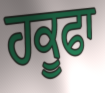
ਹਕੂਫਾ